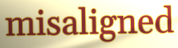
misaligned